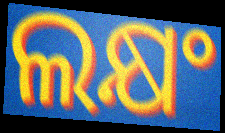
ଲକ୍ଷଂ